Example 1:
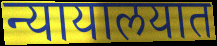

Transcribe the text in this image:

न्यायालयात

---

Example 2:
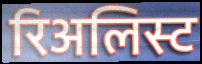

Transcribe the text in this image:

रिअलिस्ट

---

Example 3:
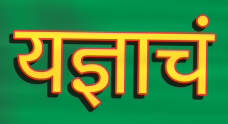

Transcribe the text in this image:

यज्ञाचं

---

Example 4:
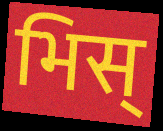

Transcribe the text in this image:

भिस्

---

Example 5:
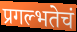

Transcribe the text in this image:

प्रगल्भतेचं